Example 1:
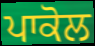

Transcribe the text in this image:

ਪਾਕੋਲ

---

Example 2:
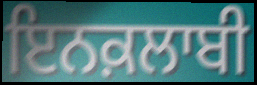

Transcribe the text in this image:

ਇਨਕ਼ਲਾਬੀ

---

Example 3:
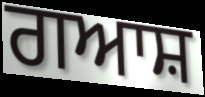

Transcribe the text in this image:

ਗਆਸ਼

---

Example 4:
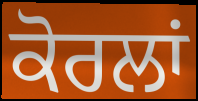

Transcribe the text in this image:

ਕੋਰਲਾਂ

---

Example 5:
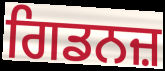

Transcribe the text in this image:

ਗਿਡਨਜ਼